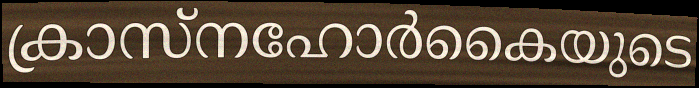
ക്രാസ്നഹോർകൈയുടെ